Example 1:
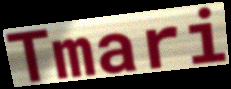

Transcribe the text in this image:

Tmari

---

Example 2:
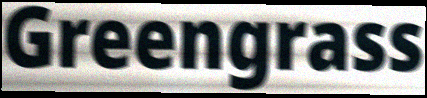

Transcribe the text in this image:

Greengrass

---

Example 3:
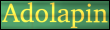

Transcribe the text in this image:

Adolapin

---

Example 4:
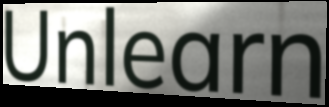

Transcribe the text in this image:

Unlearn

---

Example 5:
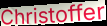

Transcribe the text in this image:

Christoffer